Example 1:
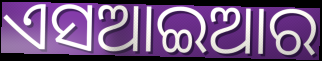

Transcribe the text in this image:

ଏସଆଇଆର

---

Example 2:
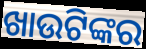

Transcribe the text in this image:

ଖାଉଟିଙ୍କର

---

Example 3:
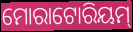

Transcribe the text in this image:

ମୋରାଟୋରିୟମ୍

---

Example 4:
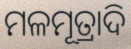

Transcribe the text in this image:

ମଳମୂତ୍ରାଦି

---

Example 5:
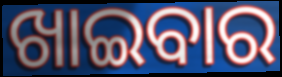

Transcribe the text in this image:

ଖାଇବାର